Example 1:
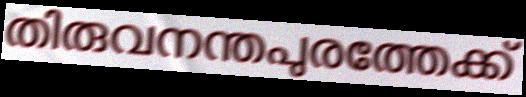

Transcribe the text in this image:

തിരുവനന്തപുരത്തേക്ക്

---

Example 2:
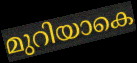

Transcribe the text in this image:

മുറിയാകെ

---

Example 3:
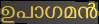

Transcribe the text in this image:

ഉപാഗമൻ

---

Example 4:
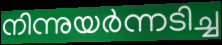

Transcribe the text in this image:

നിന്നുയർന്നടിച്ച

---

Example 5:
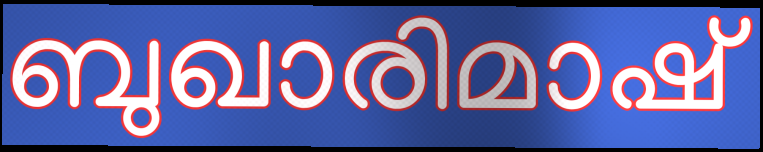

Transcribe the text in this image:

ബുഖാരിമാഷ്